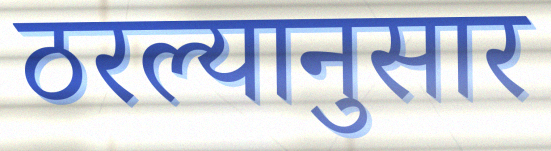
ठरल्यानुसार